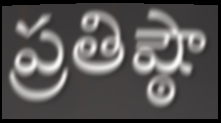
ప్రతిష్ఠౌ